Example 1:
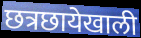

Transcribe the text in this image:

छत्रछायेखाली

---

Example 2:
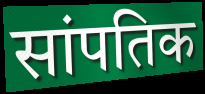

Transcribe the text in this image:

सांपतिक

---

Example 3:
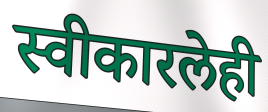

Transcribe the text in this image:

स्वीकारलेही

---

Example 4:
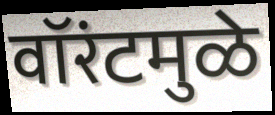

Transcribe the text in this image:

वॉरंटमुळे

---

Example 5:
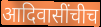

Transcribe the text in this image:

आदिवासींचीच